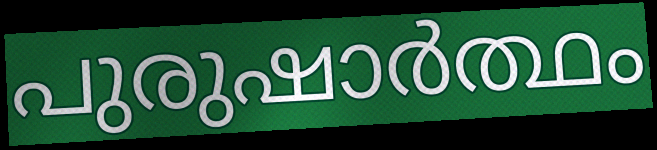
പുരുഷാർത്ഥം